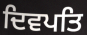
ਦਿਵਪਤਿ